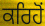
ਕਰਿਹੋਂ